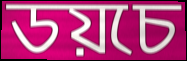
ডয়চে